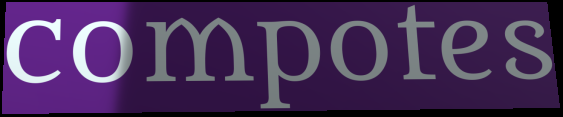
compotes